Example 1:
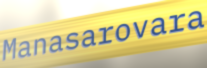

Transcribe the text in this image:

Manasarovara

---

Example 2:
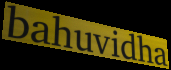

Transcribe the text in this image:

bahuvidha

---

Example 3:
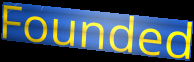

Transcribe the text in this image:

Founded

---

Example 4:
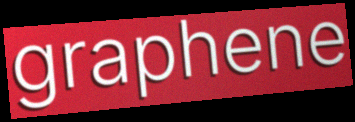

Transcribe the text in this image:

graphene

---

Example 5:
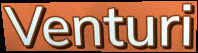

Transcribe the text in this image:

Venturi